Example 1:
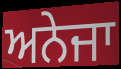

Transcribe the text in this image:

ਅਨੇਜਾ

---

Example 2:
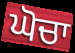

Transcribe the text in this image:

ਘੋਚਾ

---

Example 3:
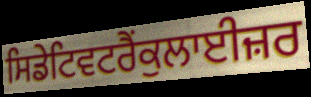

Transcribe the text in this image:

ਸਿਡੇਟਿਵਟਰੈਂਕੁਲਾਈਜ਼ਰ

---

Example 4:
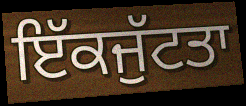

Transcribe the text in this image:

ਇੱਕਜੁੱਟਤਾ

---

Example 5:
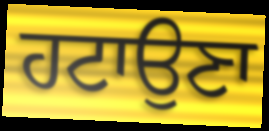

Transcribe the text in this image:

ਹਟਾਉਣਾ